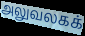
அலுவலகக்